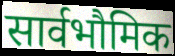
सार्वभौमिक